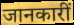
जानकारीं